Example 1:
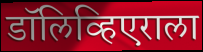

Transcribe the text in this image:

डॉलिव्हिएराला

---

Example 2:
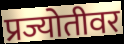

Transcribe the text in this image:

प्रज्योतीवर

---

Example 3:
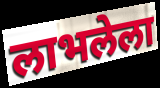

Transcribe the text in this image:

लाभलेला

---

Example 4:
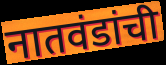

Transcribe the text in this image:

नातवंडांची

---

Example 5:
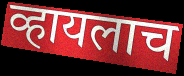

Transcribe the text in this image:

व्हायलाच